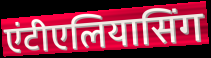
एंटीएलियासिंग